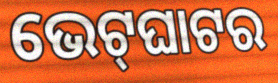
ଭେଟ୍‌ଘାଟର